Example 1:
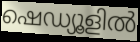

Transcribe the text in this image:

ഷെഡ്യൂളിൽ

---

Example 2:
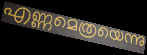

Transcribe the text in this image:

എണ്ണമെത്രയെന്നു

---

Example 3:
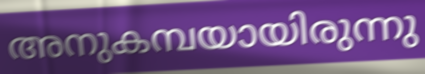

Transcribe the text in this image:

അനുകമ്പയായിരുന്നു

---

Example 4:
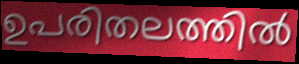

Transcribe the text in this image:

ഉപരിതലത്തിൽ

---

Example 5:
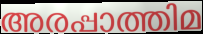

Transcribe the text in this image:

അരപ്പാത്തിമ